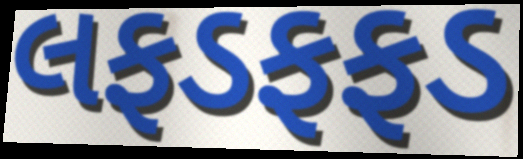
લફડફફડ